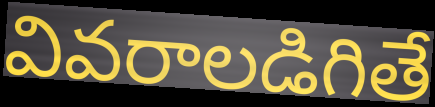
వివరాలడిగితే